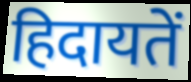
हिदायतें